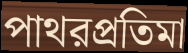
পাথরপ্রতিমা